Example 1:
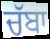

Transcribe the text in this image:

ਚੱਬਾ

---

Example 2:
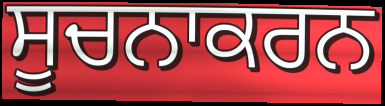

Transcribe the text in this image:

ਸੂਚਨਾਕਰਨ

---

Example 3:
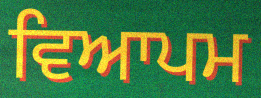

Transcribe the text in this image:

ਵਿਆਪਮ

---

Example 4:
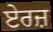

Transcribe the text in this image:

ਏਰਜ਼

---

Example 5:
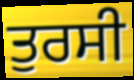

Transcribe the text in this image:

ਤੁਰਸੀ